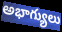
అభాగ్యులు